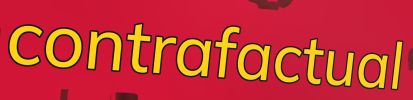
contrafactual